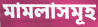
মামলাসমূহ